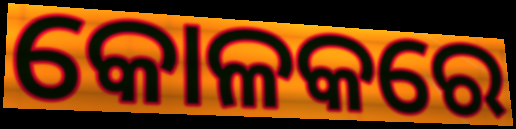
କୋଳକରେ